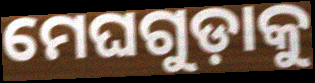
ମେଘଗୁଡ଼ାକୁ